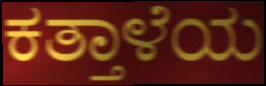
ಕತ್ತಾಳೆಯ